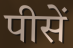
पीसें